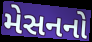
મેસનનો